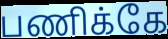
பணிக்கே